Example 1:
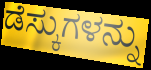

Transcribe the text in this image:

ಡೆಸ್ಕುಗಳನ್ನು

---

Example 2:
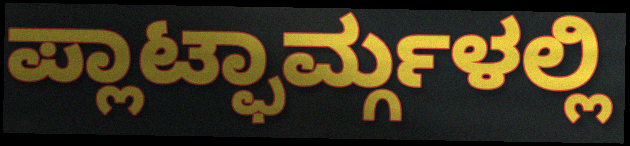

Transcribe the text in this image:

ಪ್ಲಾಟ್ಫಾರ್ಮ್ಗಳಲ್ಲಿ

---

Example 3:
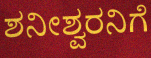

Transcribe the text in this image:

ಶನೀಶ್ವರನಿಗೆ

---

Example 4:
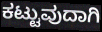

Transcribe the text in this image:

ಕಟ್ಟುವುದಾಗಿ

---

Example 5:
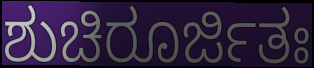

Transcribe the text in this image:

ಶುಚಿರೂರ್ಜಿತಃ